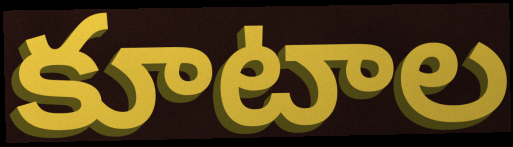
కూటాల